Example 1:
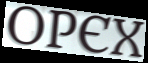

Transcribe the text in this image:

OPEX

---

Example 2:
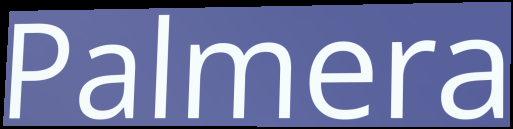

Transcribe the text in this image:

Palmera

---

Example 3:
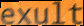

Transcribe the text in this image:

exult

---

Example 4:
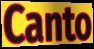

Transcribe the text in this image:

Canto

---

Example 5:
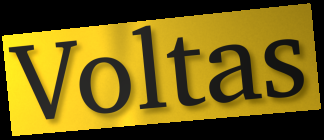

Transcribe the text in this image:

Voltas